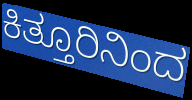
ಕಿತ್ತೂರಿನಿಂದ